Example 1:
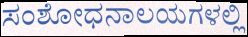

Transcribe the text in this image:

ಸಂಶೋಧನಾಲಯಗಳಲ್ಲಿ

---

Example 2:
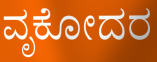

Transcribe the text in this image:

ವೃಕೋದರ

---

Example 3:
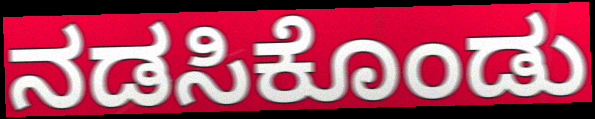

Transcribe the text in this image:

ನಡಸಿಕೊಂಡು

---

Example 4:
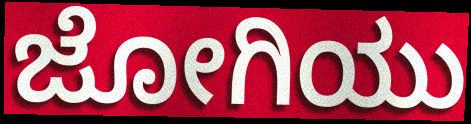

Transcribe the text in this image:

ಜೋಗಿಯು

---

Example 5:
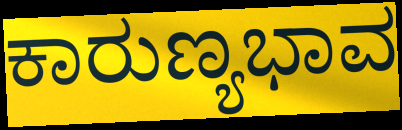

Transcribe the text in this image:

ಕಾರುಣ್ಯಭಾವ